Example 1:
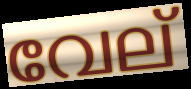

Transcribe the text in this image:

വേല്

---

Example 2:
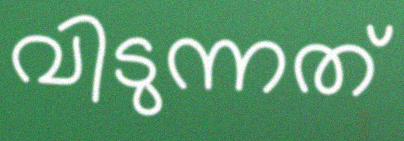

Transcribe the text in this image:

വിടുന്നത്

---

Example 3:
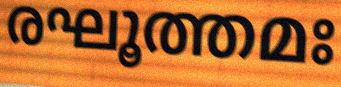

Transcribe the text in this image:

രഘൂത്തമഃ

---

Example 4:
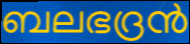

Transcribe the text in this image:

ബലഭദ്രൻ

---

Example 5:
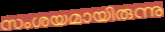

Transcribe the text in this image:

സംശയമായിരുന്നു